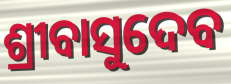
ଶ୍ରୀବାସୁଦେବ